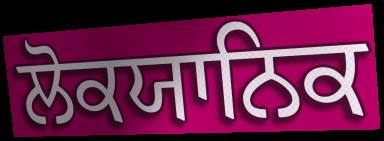
ਲੋਕਯਾਨਿਕ